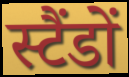
स्टैंडों